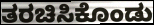
ತರಚಿಸಿಕೊಂಡು